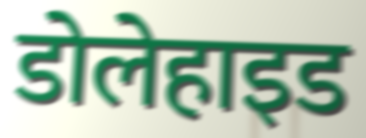
डोलेहाइड